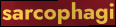
sarcophagi